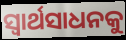
ସ୍ଵାର୍ଥସାଧନକୁ